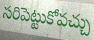
సరిపెట్టుకోవచ్చు